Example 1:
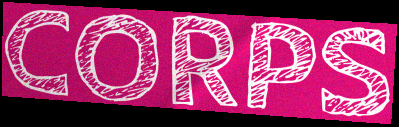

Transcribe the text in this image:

CORPS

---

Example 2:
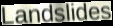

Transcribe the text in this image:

Landslides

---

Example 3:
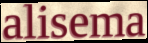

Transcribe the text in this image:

alisema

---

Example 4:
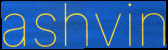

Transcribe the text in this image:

ashvin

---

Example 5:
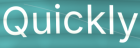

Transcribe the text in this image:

Quickly